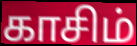
காசிம்